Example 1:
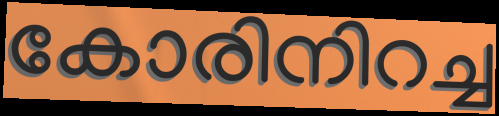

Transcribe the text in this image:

കോരിനിറച്ച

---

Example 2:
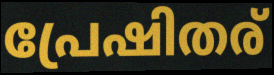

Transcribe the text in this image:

പ്രേഷിതര്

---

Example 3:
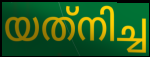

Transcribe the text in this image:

യത്‌നിച്ച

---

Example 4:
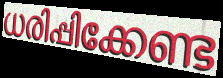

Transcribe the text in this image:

ധരിപ്പിക്കേണ്ട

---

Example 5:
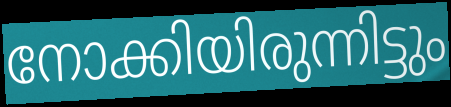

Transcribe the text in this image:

നോക്കിയിരുന്നിട്ടും